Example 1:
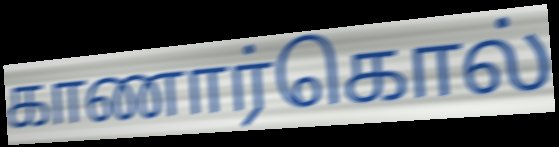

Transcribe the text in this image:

காணார்கொல்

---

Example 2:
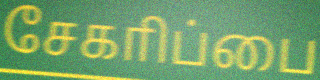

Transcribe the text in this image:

சேகரிப்பை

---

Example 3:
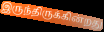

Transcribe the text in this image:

இருந்திருக்கின்றது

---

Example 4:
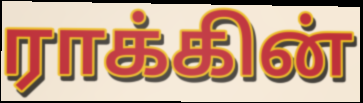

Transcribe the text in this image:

ராக்கின்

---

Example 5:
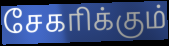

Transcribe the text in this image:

சேகரிக்கும்